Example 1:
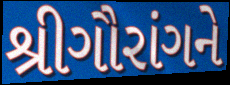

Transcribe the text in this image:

શ્રીગૌરાંગને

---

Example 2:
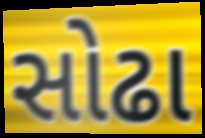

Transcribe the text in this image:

સોઢા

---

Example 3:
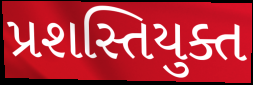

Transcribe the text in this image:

પ્રશસ્તિયુક્ત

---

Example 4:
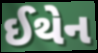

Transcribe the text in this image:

ઈથેન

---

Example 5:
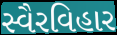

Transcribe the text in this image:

સ્વૈરવિહાર